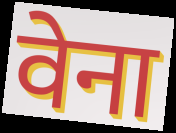
वेना